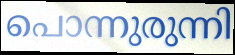
പൊന്നുരുന്നി